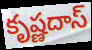
కృష్ణదాస్